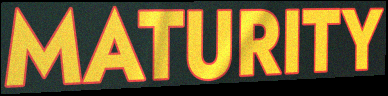
MATURITY